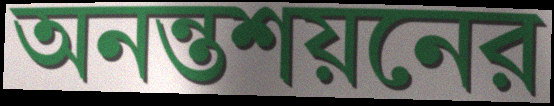
অনন্তশয়নের